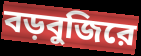
বড়বুজিরে